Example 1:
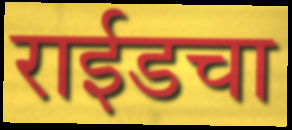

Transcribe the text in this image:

राईडचा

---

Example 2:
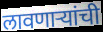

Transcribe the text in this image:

लावणाऱ्यांची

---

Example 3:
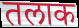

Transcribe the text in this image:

तलाक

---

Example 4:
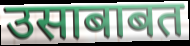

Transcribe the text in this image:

उसाबाबत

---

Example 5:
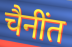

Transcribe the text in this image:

चैनींत